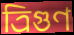
ত্রিগুণ